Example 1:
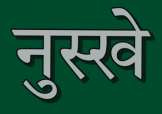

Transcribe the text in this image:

नुस्खे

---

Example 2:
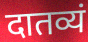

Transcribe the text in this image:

दातव्यं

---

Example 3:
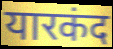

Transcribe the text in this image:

यारकंद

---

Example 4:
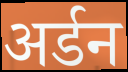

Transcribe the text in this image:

अर्डन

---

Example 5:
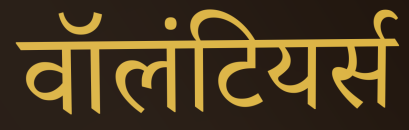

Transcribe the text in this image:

वॉलंटियर्स